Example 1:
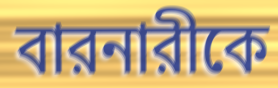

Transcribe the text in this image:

বারনারীকে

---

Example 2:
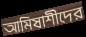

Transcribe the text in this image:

আমিষাশীদের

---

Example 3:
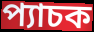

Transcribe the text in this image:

প্যাচক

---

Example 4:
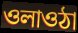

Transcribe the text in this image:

ওলাওঠা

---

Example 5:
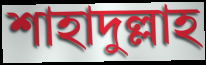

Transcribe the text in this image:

শাহাদুল্লাহ